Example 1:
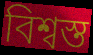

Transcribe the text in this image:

বিশ্বস্ত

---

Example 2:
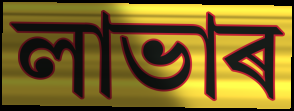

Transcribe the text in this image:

লাভাৰ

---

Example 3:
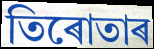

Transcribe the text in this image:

তিৰোতাৰ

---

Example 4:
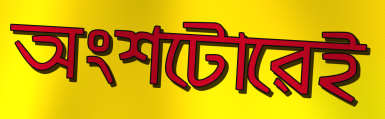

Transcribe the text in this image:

অংশটোৱেই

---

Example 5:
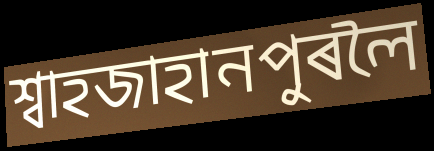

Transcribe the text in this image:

শ্বাহজাহানপুৰলৈ